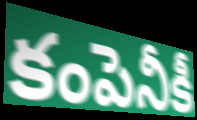
కంపెనీకీ